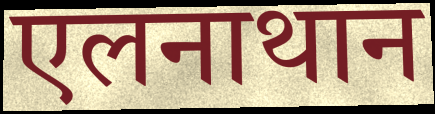
एलनाथान